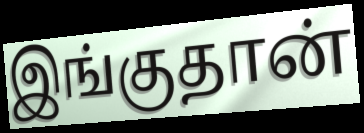
இங்குதான்